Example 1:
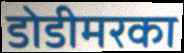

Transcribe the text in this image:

डोडीमरका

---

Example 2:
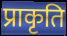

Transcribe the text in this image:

प्राकृति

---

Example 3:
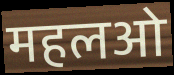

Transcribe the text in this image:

महलओ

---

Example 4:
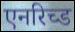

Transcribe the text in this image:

एनरिच्ड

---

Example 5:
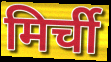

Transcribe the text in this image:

मिर्ची